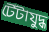
টেঁটাযুদ্ধ